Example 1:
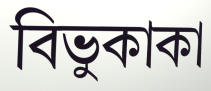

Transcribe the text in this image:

বিভুকাকা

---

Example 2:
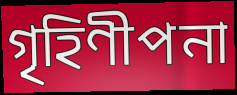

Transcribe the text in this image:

গৃহিণীপনা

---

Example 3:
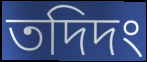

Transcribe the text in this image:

তদিদং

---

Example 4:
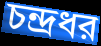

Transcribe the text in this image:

চন্দ্রধর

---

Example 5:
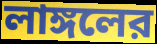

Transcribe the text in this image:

লাঙ্গলের